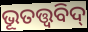
ଭୂତତ୍ତ୍ବବିଦ୍